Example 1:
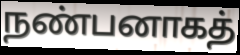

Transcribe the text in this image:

நண்பனாகத்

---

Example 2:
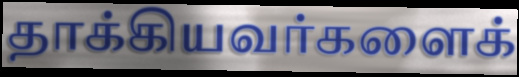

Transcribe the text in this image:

தாக்கியவர்களைக்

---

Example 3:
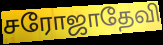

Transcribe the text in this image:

சரோஜாதேவி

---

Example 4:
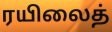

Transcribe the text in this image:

ரயிலைத்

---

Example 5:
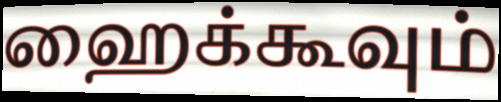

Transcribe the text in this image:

ஹைக்கூவும்